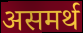
असमर्थ